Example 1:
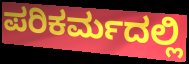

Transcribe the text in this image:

ಪರಿಕರ್ಮದಲ್ಲಿ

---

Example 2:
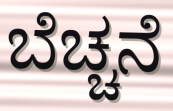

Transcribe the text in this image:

ಬೆಚ್ಚನೆ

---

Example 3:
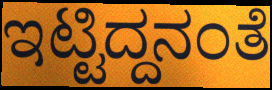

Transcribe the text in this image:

ಇಟ್ಟಿದ್ದನಂತೆ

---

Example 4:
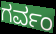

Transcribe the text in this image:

ಗರ್ವಂ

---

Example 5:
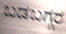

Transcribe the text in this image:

ಬಡಬಗ್ಗರ